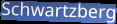
Schwartzberg